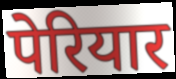
पेरियार